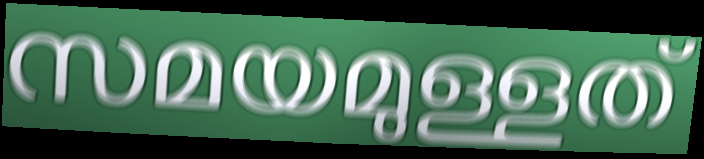
സമയമുള്ളത്